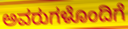
ಅವರುಗಳೊಂದಿಗೆ